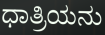
ಧಾತ್ರಿಯನು